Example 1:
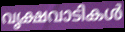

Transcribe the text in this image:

വൃക്ഷവാടികൾ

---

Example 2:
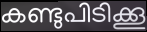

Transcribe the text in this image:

കണ്ടുപിടിക്കൂ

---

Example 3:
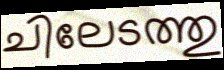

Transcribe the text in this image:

ചിലേടത്തു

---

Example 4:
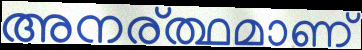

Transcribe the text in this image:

അനര്ത്ഥമാണ്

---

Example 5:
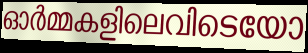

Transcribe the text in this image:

ഓർമ്മകളിലെവിടെയോ